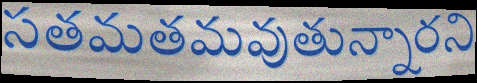
సతమతమవుతున్నారని